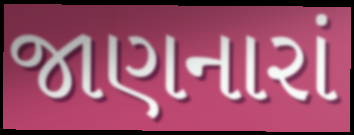
જાણનારાં